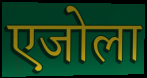
एजोला